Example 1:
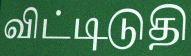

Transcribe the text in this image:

விட்டிடுதி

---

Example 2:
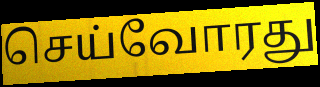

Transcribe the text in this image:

செய்வோரது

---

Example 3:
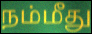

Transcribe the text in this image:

நம்மீது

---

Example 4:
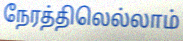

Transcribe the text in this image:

நேரத்திலெல்லாம்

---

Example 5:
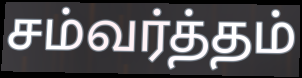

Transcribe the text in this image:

சம்வர்த்தம்